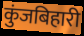
कुंजबिहारी